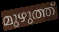
മുഴുത്ത്